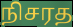
நிசரத